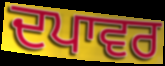
ਦਪਾਵਰ